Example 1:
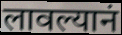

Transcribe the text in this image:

लावल्यानं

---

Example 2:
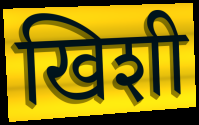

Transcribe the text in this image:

खिशी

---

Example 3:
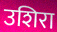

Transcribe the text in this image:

उशिरा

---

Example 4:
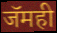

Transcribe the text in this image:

जॅमही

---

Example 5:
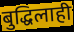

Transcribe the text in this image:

बुद्धिलाही